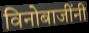
विनोबाजींनी